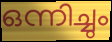
ഒന്നിച്ചും